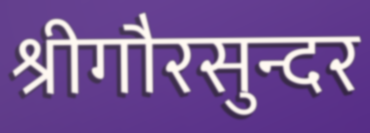
श्रीगौरसुन्दर